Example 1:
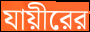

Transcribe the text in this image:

যায়ীরের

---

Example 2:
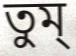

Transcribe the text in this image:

তুম্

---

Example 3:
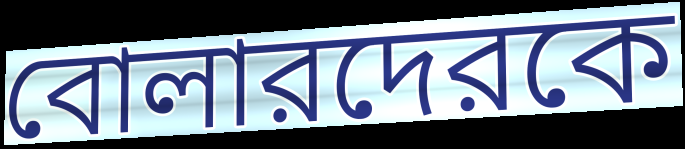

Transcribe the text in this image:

বোলারদেরকে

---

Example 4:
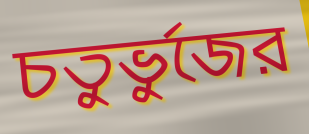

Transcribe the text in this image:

চতুর্ভুজের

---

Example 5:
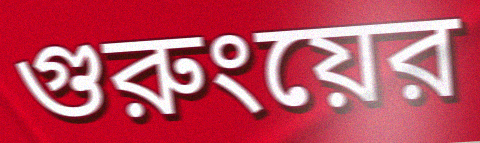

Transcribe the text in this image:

গুরুংয়ের